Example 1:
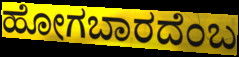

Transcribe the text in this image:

ಹೋಗಬಾರದೆಂಬ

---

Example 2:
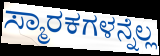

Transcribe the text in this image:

ಸ್ಮಾರಕಗಳನ್ನೆಲ್ಲ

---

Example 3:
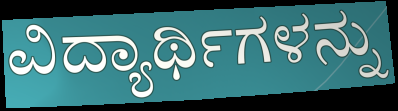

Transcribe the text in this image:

ವಿದ್ಯಾರ್ಥಿಗಳನ್ನು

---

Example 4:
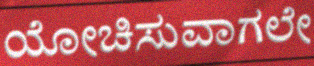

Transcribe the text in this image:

ಯೋಚಿಸುವಾಗಲೇ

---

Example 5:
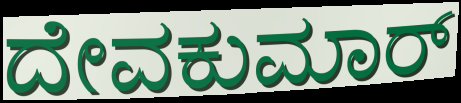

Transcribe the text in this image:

ದೇವಕುಮಾರ್